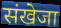
संखेजा